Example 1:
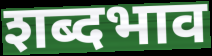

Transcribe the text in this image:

शब्दभाव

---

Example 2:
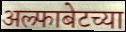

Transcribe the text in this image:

अल्फाबेटच्या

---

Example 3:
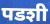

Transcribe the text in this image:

पडशी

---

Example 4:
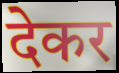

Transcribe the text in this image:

देकर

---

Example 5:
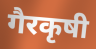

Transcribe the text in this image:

गैरकृषी